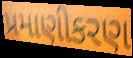
પ્રમાણીકરણ